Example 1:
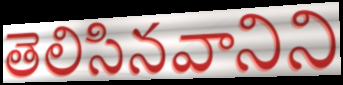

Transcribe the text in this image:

తెలిసినవానిని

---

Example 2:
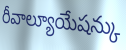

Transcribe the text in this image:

రీవాల్యూయేషన్కు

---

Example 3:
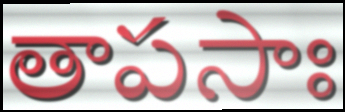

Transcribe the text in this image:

తాపసాః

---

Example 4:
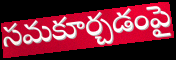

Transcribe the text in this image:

సమకూర్చడంపై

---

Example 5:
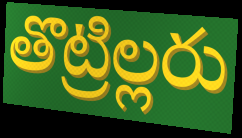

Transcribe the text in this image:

తొట్రిల్లరు